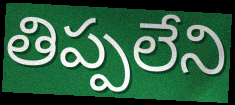
తిప్పలేని